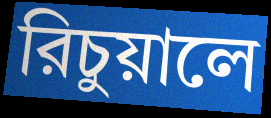
রিচুয়ালে